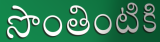
సొంతింటికి